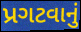
પ્રગટવાનું